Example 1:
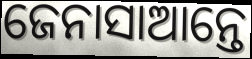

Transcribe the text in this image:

ଜେନାସାଆନ୍ତେ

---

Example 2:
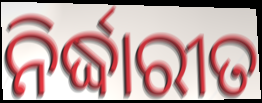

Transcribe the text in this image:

ନିର୍ଦ୍ଧାରୀତ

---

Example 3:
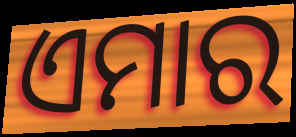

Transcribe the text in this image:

ଏମାର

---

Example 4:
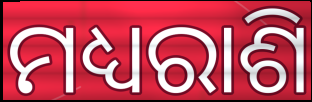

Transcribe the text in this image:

ମଧ୍ୟରାଶି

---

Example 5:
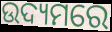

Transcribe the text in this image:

ଉଦ୍ୟମରେ